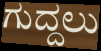
ಗುದ್ದಲು